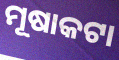
ମୂଷାକଟା